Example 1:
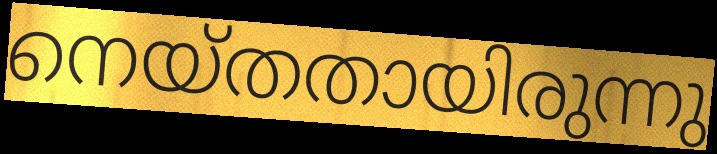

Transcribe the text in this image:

നെയ്തതായിരുന്നു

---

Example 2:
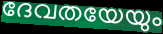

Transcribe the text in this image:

ദേവതയേയും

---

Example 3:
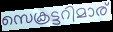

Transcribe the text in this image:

സെക്രട്ടറിമാര്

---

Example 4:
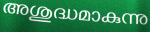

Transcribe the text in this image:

അശുദ്ധമാകുന്നു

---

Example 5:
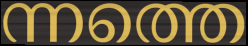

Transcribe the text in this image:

ന്നത്തെ